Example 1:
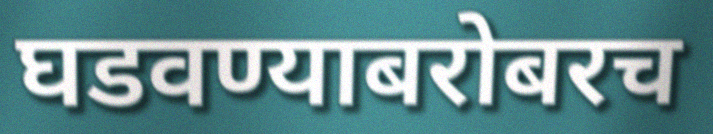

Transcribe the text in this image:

घडवण्याबरोबरच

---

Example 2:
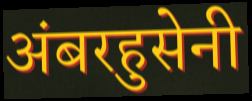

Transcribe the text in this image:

अंबरहुसेनी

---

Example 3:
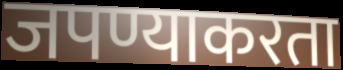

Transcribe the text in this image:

जपण्याकरता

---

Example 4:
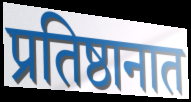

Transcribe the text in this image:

प्रतिष्ठानात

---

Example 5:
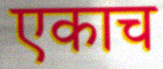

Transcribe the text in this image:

एकाच